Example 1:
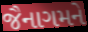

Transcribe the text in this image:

જૈનાગમને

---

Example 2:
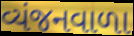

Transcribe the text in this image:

વ્યંજનવાળા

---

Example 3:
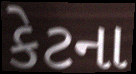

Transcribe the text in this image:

કેટના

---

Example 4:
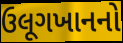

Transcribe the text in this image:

ઉલૂગખાનનો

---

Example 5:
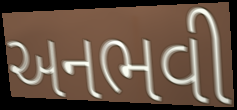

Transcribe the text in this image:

અનભવી